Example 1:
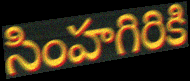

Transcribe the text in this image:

సింహగిరికి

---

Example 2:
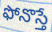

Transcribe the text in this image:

ఫోనొస్తే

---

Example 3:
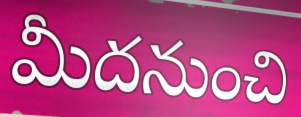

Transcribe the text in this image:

మీదనుంచి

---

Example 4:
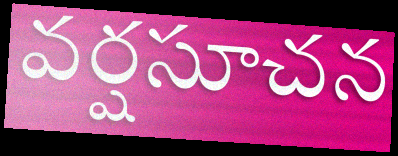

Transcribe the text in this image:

వర్షసూచన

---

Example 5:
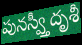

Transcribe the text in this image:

పునస్వ్తీదృశీ